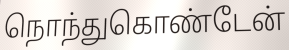
நொந்துகொண்டேன்